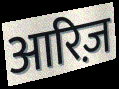
आरिज़